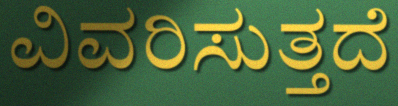
ವಿವರಿಸುತ್ತದೆ